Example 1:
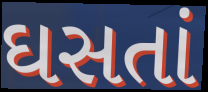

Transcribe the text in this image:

ઘસતાં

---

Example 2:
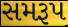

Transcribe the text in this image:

સમરૂપ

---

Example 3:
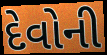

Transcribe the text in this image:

દેવોની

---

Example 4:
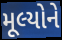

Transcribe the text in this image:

મૂલ્યોને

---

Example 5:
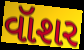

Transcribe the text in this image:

વૉશર